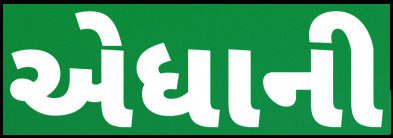
એધાની